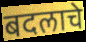
बदलाचे